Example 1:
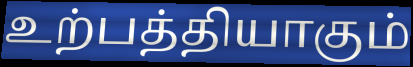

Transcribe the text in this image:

உற்பத்தியாகும்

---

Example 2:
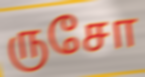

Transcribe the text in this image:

ருசோ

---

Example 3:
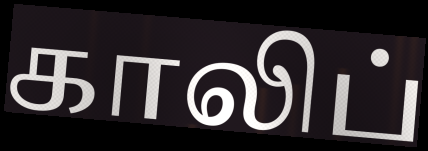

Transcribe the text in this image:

காலிப்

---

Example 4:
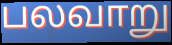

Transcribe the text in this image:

பலவாறு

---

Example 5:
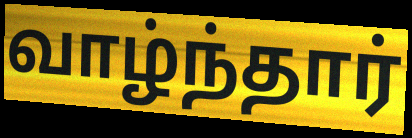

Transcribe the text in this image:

வாழ்ந்தார்